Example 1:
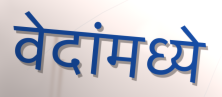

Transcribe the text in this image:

वेदांमध्ये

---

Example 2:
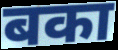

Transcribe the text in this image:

बका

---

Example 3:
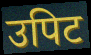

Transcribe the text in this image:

उपिट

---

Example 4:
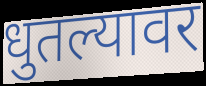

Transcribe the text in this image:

धुतल्यावर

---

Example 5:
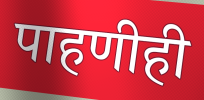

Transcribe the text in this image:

पाहणीही